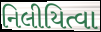
નિલીયિત્વા